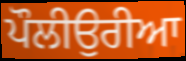
ਪੌਲੀਉਰੀਆ